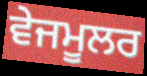
ਵੇਜਮੂਲਰ